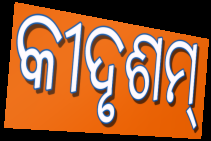
କୀଦୃଶମ୍